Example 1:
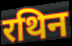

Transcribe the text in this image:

रथिन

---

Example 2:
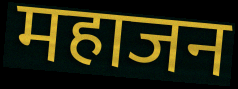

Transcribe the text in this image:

महाजन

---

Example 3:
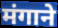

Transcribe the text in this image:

मंगाने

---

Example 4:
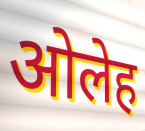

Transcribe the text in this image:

ओलेह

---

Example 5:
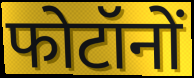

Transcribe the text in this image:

फोटॉनों